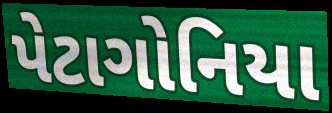
પેટાગોનિયા